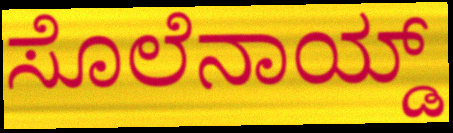
ಸೊಲೆನಾಯ್ಡ್